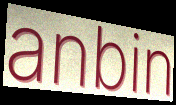
anbin